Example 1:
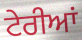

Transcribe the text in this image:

ਟੇਰੀਆਂ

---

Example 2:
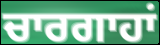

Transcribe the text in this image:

ਚਾਰਗਾਹਾਂ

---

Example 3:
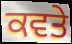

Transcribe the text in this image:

ਕਵਤੇ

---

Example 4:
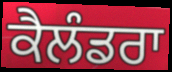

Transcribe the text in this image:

ਕੈਲੰਡਰਾ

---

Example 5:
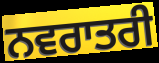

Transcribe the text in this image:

ਨਵਰਾਤਰੀ